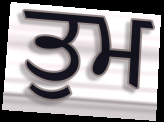
ਤੁਮ